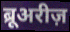
ब्रूअरीज़